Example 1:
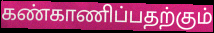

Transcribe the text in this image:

கண்காணிப்பதற்கும்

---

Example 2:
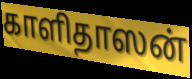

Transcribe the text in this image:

காளிதாஸன்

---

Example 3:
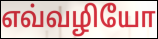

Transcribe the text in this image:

எவ்வழியோ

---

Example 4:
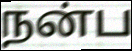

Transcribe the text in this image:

நன்ப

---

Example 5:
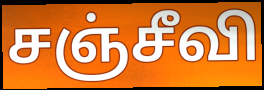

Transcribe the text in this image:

சஞ்சீவி